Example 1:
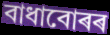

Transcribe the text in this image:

বাধাবোৰৰ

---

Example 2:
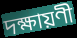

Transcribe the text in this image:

দক্ষায়ণী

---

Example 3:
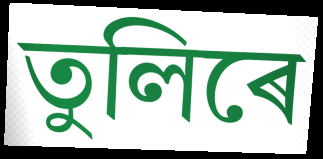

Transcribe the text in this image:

তুলিৰে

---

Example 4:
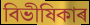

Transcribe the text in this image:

বিভীষিকাৰ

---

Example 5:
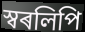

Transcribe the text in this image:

স্বৰলিপি